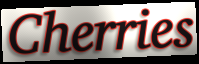
Cherries